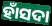
ହାଁସଦା